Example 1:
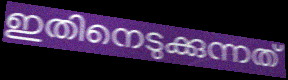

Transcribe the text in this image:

ഇതിനെടുക്കുന്നത്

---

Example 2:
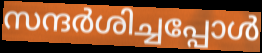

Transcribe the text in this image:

സന്ദർശിച്ചപ്പോൾ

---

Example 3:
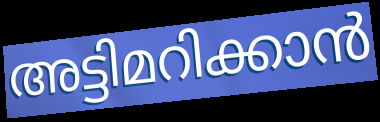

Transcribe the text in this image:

അട്ടിമറിക്കാൻ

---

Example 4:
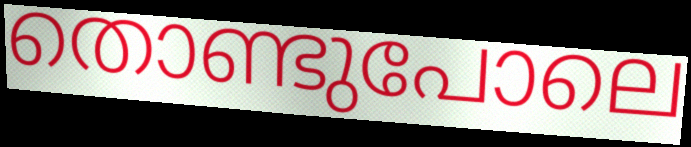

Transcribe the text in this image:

തൊണ്ടുപോലെ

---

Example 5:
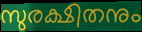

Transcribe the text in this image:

സുരക്ഷിതനും